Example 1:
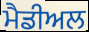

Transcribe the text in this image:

ਮੈਡੀਅਲ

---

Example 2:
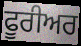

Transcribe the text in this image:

ਫੂਰੀਅਰ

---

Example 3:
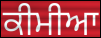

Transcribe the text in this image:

ਕੀਮੀਆ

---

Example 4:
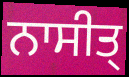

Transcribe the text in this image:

ਨਾਸੀਤ੍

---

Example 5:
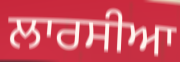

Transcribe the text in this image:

ਲਾਰਸੀਆ